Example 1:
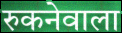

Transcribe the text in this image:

रुकनेवाला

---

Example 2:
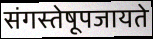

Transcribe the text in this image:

संगस्तेषूपजायते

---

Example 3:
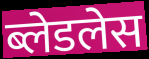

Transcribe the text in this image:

ब्लेडलेस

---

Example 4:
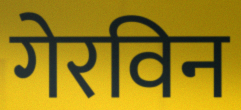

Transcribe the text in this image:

गेरविन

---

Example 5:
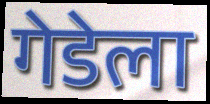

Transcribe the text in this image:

गेडेला